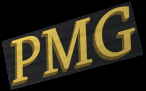
PMG